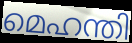
മെഹന്തി